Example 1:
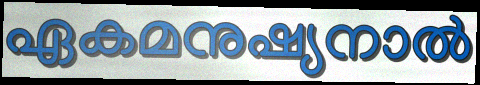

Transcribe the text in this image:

ഏകമനുഷ്യനാൽ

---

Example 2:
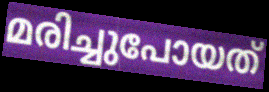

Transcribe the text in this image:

മരിച്ചുപോയത്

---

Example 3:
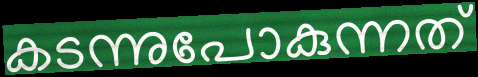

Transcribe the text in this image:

കടന്നുപോകുന്നത്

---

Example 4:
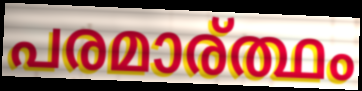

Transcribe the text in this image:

പരമാര്ത്ഥം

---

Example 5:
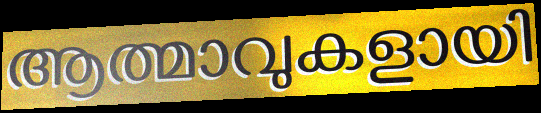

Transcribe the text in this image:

ആത്മാവുകളായി